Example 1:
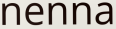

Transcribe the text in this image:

nenna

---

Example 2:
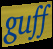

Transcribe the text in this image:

guff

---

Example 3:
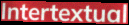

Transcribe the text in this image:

Intertextual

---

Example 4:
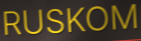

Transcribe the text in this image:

RUSKOM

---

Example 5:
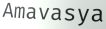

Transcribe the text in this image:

Amavasya